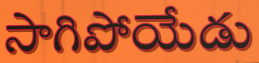
సాగిపోయేడు